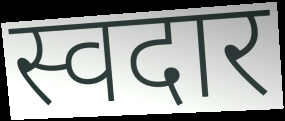
स्वदार